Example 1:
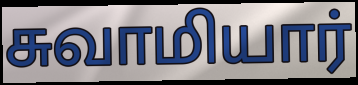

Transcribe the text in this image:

சுவாமியார்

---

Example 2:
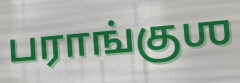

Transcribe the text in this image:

பராங்குஶ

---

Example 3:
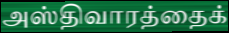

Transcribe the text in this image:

அஸ்திவாரத்தைக்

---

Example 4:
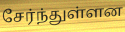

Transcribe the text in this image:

சேர்ந்துள்ளன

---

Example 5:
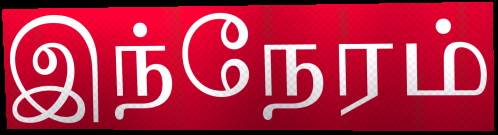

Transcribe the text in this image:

இந்நேரம்